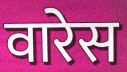
वारेस